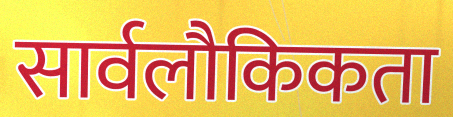
सार्वलौकिकता